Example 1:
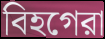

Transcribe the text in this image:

বিহগেরা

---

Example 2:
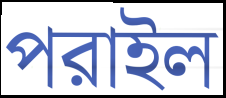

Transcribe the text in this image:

পরাইল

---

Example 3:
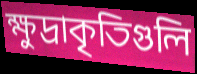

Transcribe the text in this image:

ক্ষুদ্রাকৃতিগুলি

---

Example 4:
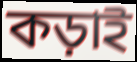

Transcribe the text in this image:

কড়াই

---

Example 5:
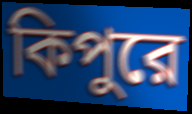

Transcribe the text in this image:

কিপুরে